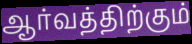
ஆர்வத்திற்கும்